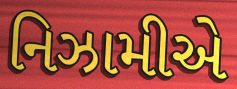
નિઝામીએ